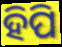
ହିପି